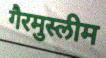
गैरमुस्लीम